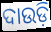
ଦାଉଡ଼ି